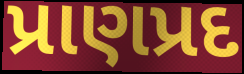
પ્રાણપ્રદ